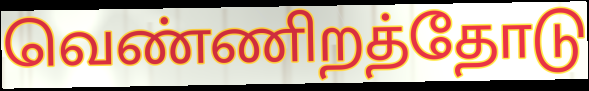
வெண்ணிறத்தோடு